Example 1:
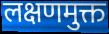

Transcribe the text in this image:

लक्षणमुक्त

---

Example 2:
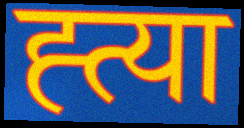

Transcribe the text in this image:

ह्त्या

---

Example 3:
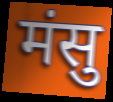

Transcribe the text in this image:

मंसु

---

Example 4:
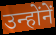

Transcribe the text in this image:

उन्होंनें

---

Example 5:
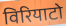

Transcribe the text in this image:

विरियाटो